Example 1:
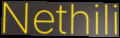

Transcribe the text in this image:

Nethili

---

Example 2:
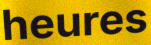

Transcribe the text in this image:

heures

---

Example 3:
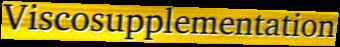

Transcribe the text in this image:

Viscosupplementation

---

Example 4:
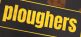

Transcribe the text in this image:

ploughers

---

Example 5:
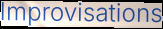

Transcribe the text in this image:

Improvisations